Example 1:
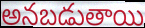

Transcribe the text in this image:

అనబడుతాయి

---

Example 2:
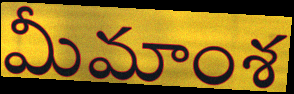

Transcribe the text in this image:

మీమాంశ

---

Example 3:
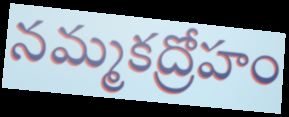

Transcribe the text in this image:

నమ్మకద్రోహం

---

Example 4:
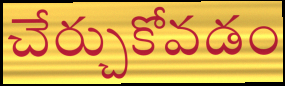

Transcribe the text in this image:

చేర్చుకోవడం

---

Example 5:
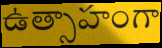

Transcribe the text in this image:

ఉత్సాహంగా